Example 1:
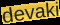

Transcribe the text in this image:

devaki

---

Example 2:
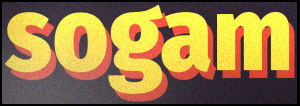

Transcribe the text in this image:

sogam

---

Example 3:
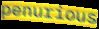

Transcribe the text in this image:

penurious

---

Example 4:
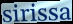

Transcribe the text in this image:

sirissa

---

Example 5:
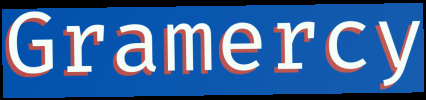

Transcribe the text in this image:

Gramercy